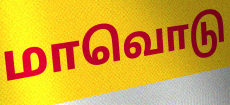
மாவொடு